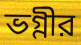
ভগ্নীর